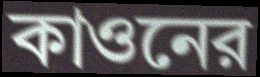
কাওনের